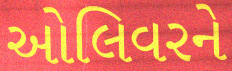
ઓલિવરને